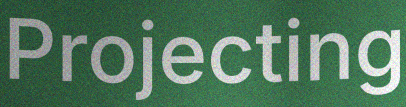
Projecting